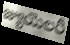
జ్యుయెలరీ